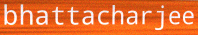
bhattacharjee